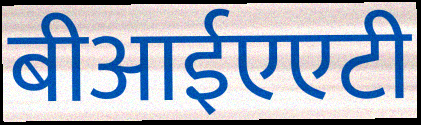
बीआईएएटी